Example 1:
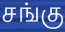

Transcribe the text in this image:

சங்கு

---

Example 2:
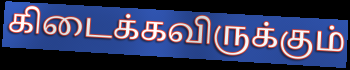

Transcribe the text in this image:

கிடைக்கவிருக்கும்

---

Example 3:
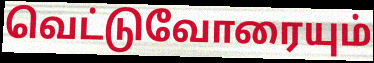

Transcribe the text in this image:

வெட்டுவோரையும்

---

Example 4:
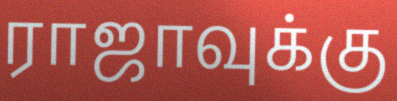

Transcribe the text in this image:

ராஜாவுக்கு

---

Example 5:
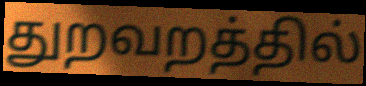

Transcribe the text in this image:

துறவறத்தில்